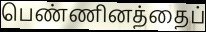
பெண்ணினத்தைப்